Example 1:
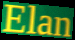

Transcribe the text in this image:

Elan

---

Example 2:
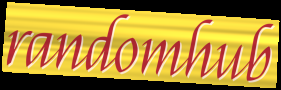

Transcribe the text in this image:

randomhub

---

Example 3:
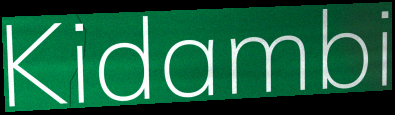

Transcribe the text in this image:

Kidambi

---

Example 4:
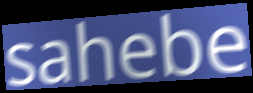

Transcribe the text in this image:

sahebe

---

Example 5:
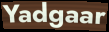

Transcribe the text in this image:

Yadgaar